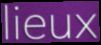
lieux